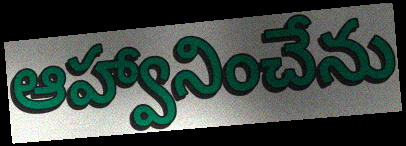
ఆహ్వానించేను